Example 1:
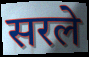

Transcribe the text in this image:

सरले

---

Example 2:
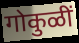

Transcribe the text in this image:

गोकुळीं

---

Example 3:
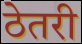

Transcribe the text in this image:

ठेतरी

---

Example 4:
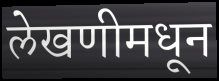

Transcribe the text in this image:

लेखणीमधून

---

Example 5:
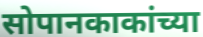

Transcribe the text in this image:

सोपानकाकांच्या